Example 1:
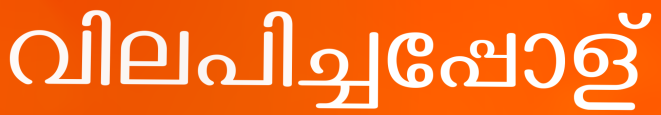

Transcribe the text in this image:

വിലപിച്ചപ്പോള്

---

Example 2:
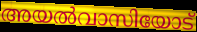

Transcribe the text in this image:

അയൽവാസിയോട്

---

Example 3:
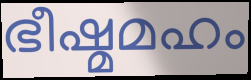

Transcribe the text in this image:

ഭീഷ്മമഹം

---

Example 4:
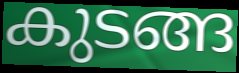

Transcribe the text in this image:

കുടങ്ങ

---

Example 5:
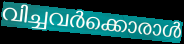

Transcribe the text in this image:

വിച്ചവർക്കൊരാൾ